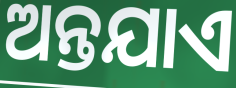
ଅନ୍ତଯାଏ